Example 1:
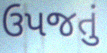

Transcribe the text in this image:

ઉપજતું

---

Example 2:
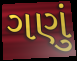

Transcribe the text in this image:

ગણું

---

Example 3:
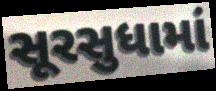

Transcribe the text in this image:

સૂરસુધામાં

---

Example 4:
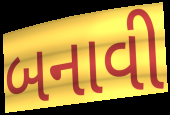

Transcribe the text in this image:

બનાવી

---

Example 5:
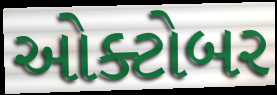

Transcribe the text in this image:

ઓક્ટોબર